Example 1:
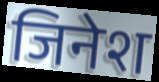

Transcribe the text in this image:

जिनेश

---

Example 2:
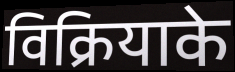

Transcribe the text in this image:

विक्रियाके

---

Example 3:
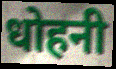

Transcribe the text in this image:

धोहनी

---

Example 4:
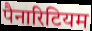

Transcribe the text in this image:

पैनारिटियम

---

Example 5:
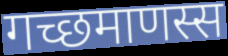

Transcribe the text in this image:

गच्छमाणस्स